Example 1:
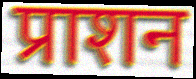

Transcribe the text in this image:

प्राशन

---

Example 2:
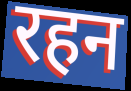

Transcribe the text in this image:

रहन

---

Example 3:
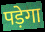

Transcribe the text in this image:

पड़ेगा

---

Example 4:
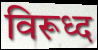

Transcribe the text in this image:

विरूध्द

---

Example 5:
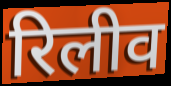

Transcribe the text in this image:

रिलीव